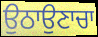
ਉਠਾਉਣਾਚਾ